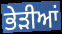
ਭੇੜੀਆਂ